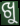
ଖୁ